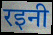
रइनी